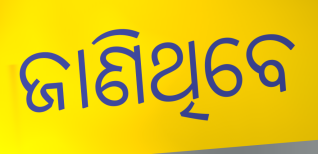
ଜାଣିଥିବେ